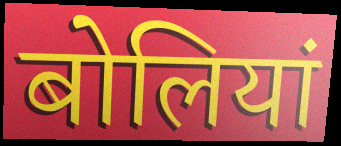
बोलियां